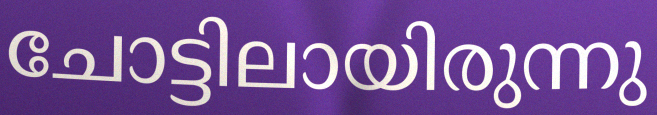
ചോട്ടിലായിരുന്നു